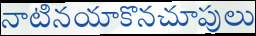
నాటినయాకొనచూపులు